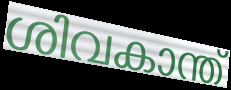
ശിവകാന്ത്